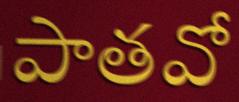
పాతవో